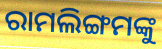
ରାମଲିଙ୍ଗମଙ୍କୁ